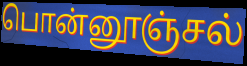
பொன்னூஞ்சல்